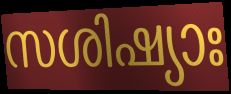
സശിഷ്യാഃ